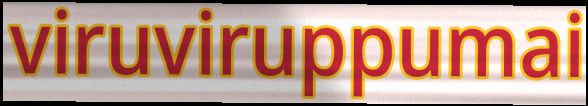
viruviruppumai